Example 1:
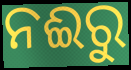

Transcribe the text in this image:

ନଈରୁ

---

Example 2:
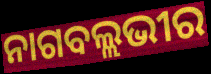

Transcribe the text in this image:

ନାଗବଲ୍ଲଭୀର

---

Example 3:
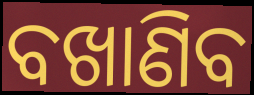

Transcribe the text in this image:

ବଖାଣିବ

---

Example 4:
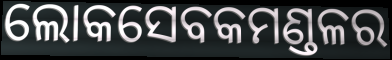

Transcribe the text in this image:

ଲୋକସେବକମଣ୍ଡଳର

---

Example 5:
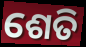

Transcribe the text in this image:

ଶେତି